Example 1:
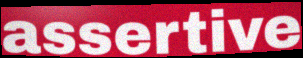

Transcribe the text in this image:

assertive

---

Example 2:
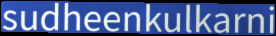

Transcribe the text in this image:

sudheenkulkarni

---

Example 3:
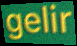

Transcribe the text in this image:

gelir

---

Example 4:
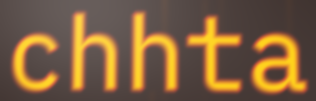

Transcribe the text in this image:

chhta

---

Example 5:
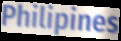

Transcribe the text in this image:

Philipines